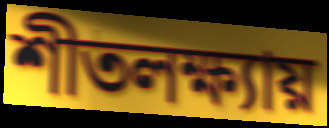
শীতলক্ষ্যায়